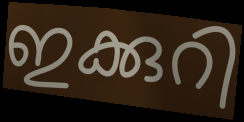
ഇക്കുറി